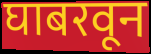
घाबरवून